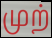
முற்